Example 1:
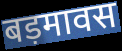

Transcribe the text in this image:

बड़मावस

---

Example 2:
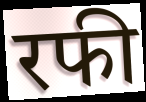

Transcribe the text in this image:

रफी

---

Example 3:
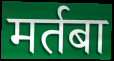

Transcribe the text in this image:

मर्तबा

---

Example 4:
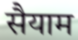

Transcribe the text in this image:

सैयाम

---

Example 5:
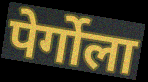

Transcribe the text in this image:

पेर्गोला